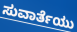
ಸುವಾರ್ತೆಯು